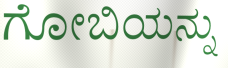
ಗೋಬಿಯನ್ನು